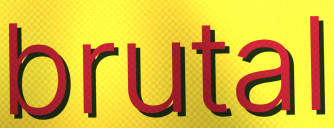
brutal